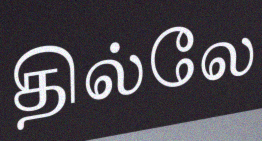
தில்லே